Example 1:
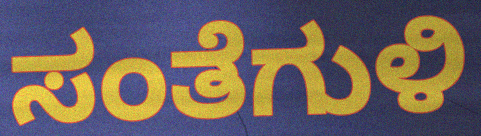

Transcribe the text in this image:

ಸಂತೆಗುಳಿ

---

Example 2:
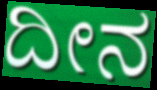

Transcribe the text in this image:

ದೀನ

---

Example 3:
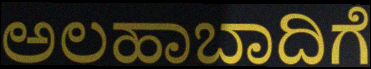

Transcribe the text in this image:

ಅಲಹಾಬಾದಿಗೆ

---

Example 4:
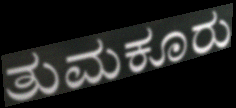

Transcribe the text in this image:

ತುಮಕೂರು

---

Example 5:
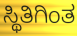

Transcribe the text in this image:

ಸ್ಥಿತಿಗಿಂತ